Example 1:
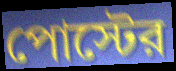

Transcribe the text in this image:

পোস্টের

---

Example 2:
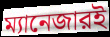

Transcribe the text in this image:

ম্যানেজারই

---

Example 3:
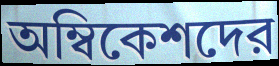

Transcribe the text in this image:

অম্বিকেশদের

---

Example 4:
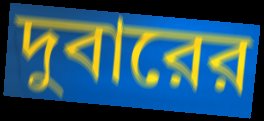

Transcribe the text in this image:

দুবারের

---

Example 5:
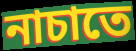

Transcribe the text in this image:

নাচাতে